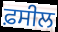
ਫ਼ਸੀਲ